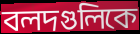
বলদগুলিকে